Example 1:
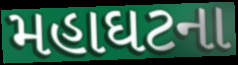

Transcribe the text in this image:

મહાઘટના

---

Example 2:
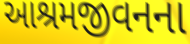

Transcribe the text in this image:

આશ્રમજીવનના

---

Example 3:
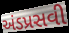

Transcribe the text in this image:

અંડપ્રસવી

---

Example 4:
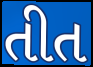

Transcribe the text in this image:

તીત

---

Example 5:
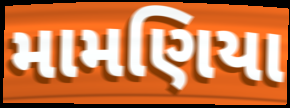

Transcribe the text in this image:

મામણિયા